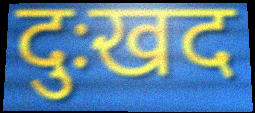
दुःखद